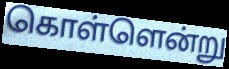
கொள்ளென்று